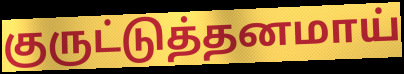
குருட்டுத்தனமாய்